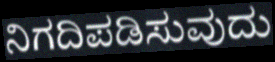
ನಿಗದಿಪಡಿಸುವುದು